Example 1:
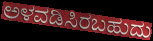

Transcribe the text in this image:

ಅಳವಡಿಸಿರಬಹುದು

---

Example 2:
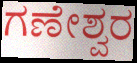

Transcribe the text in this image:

ಗಣೇಶ್ವರ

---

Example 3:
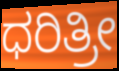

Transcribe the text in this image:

ಧರಿತ್ರೀ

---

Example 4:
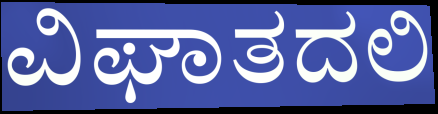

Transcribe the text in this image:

ವಿಘಾತದಲಿ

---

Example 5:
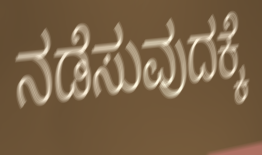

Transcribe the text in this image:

ನಡೆಸುವುದಕ್ಕೆ